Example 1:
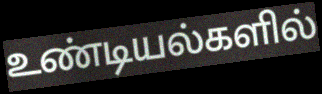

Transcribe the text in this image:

உண்டியல்களில்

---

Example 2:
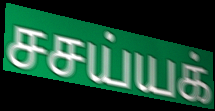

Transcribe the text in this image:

சசய்யக்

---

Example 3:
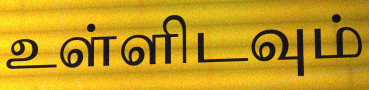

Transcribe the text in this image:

உள்ளிடவும்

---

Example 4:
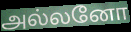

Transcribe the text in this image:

அல்லனோ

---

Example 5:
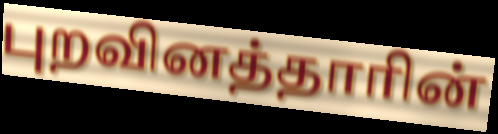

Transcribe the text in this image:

புறவினத்தாரின்